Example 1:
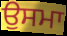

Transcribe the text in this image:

ਉਸਮਾ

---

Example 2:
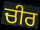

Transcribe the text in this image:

ਚੀਰ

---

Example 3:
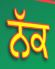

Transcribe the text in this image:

ਨੱਕ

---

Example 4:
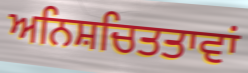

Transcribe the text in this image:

ਅਨਿਸ਼ਚਿਤਤਾਵਾਂ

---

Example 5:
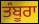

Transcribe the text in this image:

ਤੰਬੂਰਾ